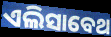
ଏଲିସାବେଥ